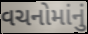
વચનોમાંનું